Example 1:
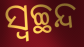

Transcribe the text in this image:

ସ୍ୱଚ୍ଛନ୍ଦ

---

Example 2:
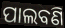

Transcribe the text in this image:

ପାଲବଣି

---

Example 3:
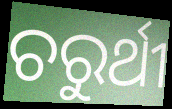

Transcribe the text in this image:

ଚରୁର୍ଥୀ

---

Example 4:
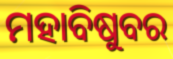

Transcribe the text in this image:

ମହାବିଷୁବର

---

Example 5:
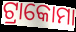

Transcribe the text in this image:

ଟ୍ରାକୋମା